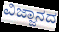
ವಿಜ್ಜಾನದ